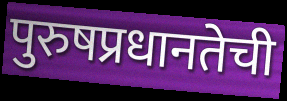
पुरुषप्रधानतेची